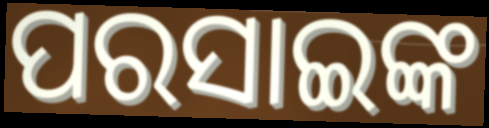
ପରସାଇଙ୍କ